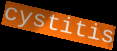
cystitis